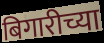
बिगारीच्या